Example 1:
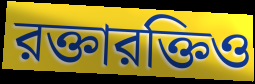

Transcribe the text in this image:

রক্তারক্তিও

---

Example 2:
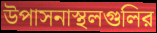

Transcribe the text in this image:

উপাসনাস্থলগুলির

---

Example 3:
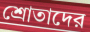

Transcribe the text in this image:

শ্রোতাদের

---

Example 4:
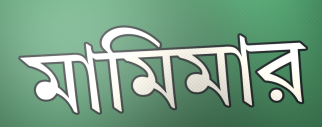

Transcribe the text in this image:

মামিমার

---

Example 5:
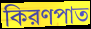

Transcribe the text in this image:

কিরণপাত